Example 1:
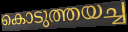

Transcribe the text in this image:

കൊടുത്തയച്ച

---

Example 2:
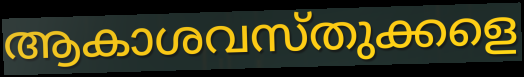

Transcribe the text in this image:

ആകാശവസ്തുക്കളെ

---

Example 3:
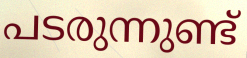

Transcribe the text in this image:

പടരുന്നുണ്ട്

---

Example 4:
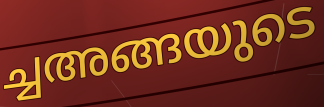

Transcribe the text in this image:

ച്ചഅങ്ങയുടെ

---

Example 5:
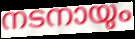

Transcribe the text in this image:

നടനായും